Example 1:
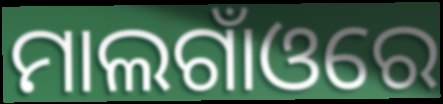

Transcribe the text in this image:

ମାଲଗାଁଓରେ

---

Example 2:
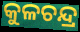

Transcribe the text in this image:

କୁଳଚନ୍ଦ୍ର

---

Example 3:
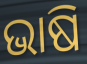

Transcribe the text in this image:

ଭାଷି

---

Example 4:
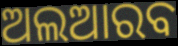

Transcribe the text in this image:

ଅଲଆରବ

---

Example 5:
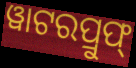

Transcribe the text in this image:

ୱାଟରପ୍ରୁଫ୍